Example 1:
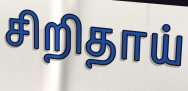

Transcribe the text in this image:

சிறிதாய்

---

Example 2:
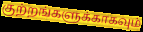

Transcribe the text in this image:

குற்றங்களுக்காகவும்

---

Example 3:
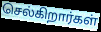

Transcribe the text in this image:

செல்கிறார்கள்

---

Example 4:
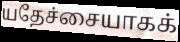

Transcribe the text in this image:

யதேச்சையாகக்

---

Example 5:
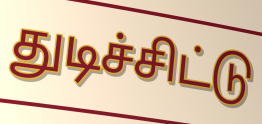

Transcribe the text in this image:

துடிச்சிட்டு